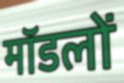
मॉडलों